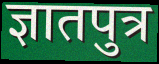
ज्ञातपुत्र